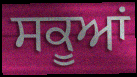
ਸਕੂਆਂ